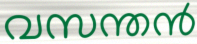
വസന്തൻ